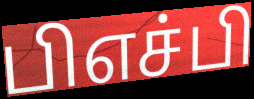
பிஎச்பி